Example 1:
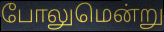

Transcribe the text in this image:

போலுமென்று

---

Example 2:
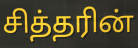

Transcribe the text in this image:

சித்தரின்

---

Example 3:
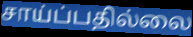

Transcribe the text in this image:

சாய்ப்பதில்லை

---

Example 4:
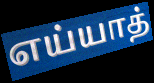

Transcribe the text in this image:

எய்யாத்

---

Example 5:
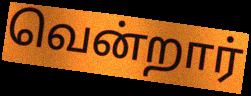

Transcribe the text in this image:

வென்றார்